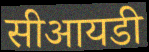
सीआयडी